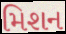
મિશન